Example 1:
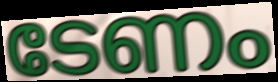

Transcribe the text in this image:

ടേണം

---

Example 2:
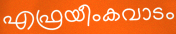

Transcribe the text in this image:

എഫ്രയീംകവാടം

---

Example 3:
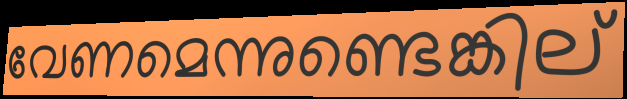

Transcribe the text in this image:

വേണമെന്നുണ്ടെങ്കില്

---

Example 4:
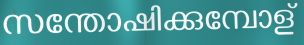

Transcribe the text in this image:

സന്തോഷിക്കുമ്പോള്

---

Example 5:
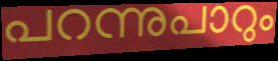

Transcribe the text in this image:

പറന്നുപാറും